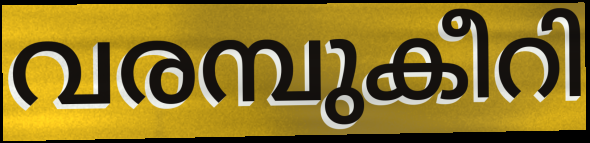
വരമ്പുകീറി